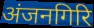
अंजनगिरि